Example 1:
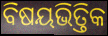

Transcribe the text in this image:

ବିଷୟଭିତ୍ତିକ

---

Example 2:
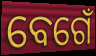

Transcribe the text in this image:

ବେଗେଁ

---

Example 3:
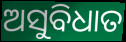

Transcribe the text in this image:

ଅସୁବିଧାତ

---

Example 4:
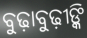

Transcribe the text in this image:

ବୁଢ଼ାବୁଢ଼ୀଙ୍କି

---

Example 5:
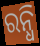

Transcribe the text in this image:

ରନ୍ଧି